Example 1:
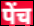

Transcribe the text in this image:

पेंच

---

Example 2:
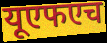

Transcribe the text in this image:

यूएफएच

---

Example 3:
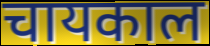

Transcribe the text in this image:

चायकाल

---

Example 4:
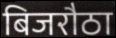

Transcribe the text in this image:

बिजरौठा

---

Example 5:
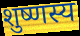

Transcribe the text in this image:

शुष्णस्य